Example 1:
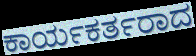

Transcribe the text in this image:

ಕಾರ್ಯಕರ್ತರಾದ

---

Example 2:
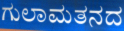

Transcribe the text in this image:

ಗುಲಾಮತನದ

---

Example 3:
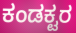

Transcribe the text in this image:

ಕಂಡಕ್ಟರ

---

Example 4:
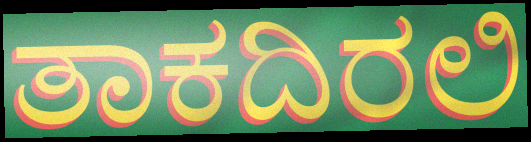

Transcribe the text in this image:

ತಾಕದಿರಲಿ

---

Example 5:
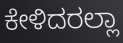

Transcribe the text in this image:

ಕೇಳಿದರಲ್ಲಾ